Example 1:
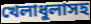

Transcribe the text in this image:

খেলাধুলাসহ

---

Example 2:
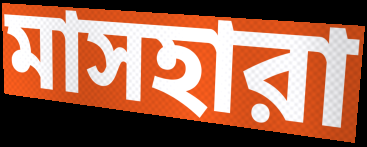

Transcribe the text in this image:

মাসহারা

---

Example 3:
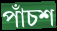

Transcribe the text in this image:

পাঁচশ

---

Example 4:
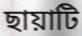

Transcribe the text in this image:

ছায়াটি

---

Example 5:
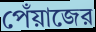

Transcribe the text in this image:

পেঁয়াজের